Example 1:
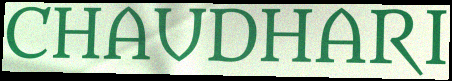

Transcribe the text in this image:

CHAUDHARI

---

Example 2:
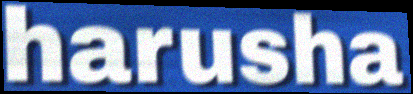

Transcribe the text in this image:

harusha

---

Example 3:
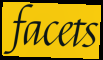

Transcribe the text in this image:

facets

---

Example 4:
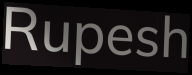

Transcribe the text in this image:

Rupesh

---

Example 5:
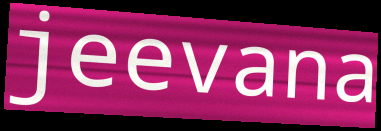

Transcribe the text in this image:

jeevana